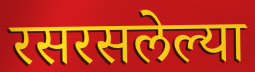
रसरसलेल्या